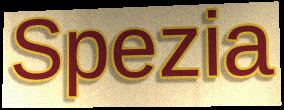
Spezia